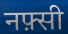
नफ़्सी